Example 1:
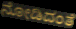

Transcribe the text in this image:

ನೋಡಿದಂತೆ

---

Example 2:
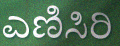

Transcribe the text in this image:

ಎಣಿಸಿರಿ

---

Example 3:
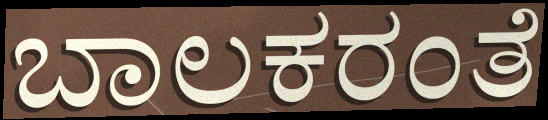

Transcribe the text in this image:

ಬಾಲಕರಂತೆ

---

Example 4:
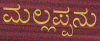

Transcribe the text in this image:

ಮಲ್ಲಪ್ಪನು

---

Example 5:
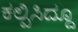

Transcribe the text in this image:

ಕಲ್ಪಿಸಿದ್ದೂ